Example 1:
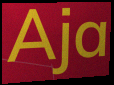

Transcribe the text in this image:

Aja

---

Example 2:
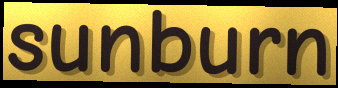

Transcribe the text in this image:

sunburn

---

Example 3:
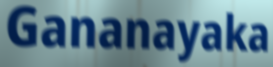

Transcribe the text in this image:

Gananayaka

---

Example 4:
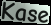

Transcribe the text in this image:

Kase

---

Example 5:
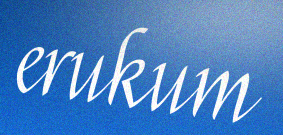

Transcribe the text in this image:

erukum